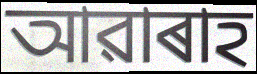
আৱাৰাহ